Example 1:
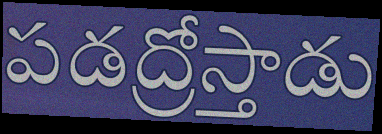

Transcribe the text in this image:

పడద్రోస్తాడు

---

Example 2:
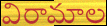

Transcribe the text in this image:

విరామాల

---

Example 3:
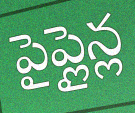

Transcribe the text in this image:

పైప్లైన్ల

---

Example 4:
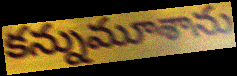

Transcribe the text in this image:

కన్నుమూశాను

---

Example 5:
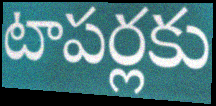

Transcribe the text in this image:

టాపర్లకు